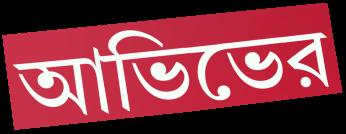
আভিভের